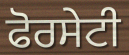
ਫੋਰਸੇਟੀ